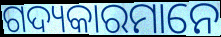
ଗଦ୍ୟକାରମାନେ